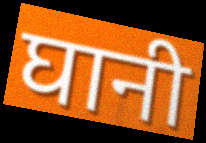
घानी